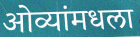
ओव्यांमधला